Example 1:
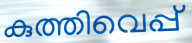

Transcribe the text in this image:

കുത്തിവെപ്പ്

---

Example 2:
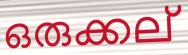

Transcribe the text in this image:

ഒരുക്കല്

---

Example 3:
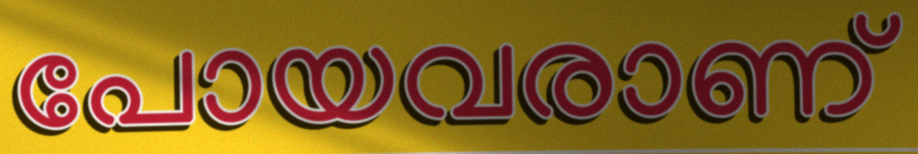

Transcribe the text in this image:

പോയവരാണ്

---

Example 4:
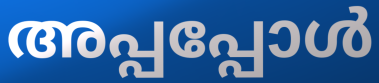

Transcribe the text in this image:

അപ്പപ്പോൾ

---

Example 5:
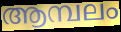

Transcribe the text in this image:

ആമ്പലം